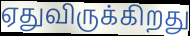
ஏதுவிருக்கிறது